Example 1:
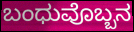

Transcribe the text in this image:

ಬಂಧುವೊಬ್ಬನ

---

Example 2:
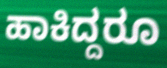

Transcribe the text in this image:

ಹಾಕಿದ್ದರೂ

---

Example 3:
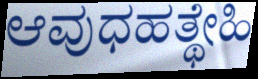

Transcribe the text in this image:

ಆವುಧಹತ್ಥೇಹಿ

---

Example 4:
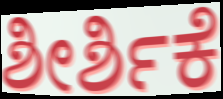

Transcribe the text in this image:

ಶೀರ್ಶಿಕೆ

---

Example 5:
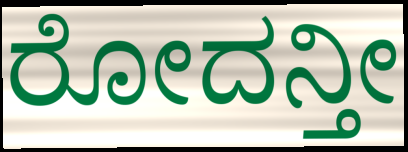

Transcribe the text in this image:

ರೋದನ್ತೀ